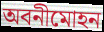
অবনীমোহন